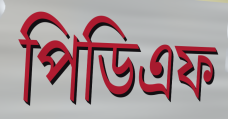
পিডিএফ